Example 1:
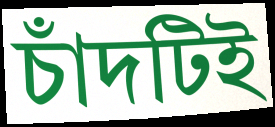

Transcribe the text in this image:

চাঁদটিই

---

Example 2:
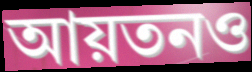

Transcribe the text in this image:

আয়তনও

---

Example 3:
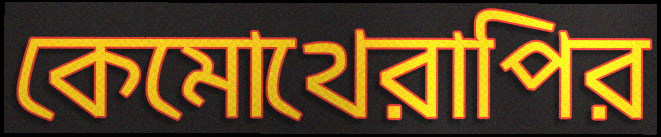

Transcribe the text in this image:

কেমোথেরাপির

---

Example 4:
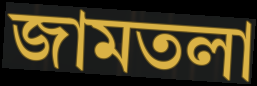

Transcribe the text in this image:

জামতলা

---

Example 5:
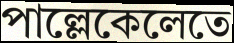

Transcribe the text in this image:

পাল্লেকেলেতে